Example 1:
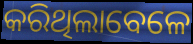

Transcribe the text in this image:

କରିଥିଲାବେଳେ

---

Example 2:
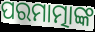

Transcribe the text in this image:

ପରମାତ୍ମାଙ୍କ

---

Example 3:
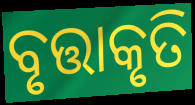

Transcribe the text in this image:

ବୃତ୍ତାକୃତି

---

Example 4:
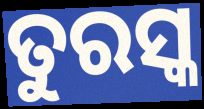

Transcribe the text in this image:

ତୁରସ୍କ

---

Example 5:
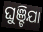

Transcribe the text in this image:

ଘୁଞ୍ଚିଯା